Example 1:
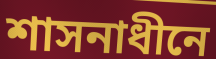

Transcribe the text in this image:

শাসনাধীনে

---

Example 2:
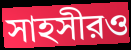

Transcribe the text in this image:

সাহসীরও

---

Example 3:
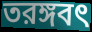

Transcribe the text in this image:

তরঙ্গবৎ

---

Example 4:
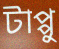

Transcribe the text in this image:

টাপ্পু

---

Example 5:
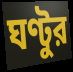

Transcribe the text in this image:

ঘণ্টুর